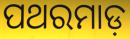
ପଥରମାଡ଼